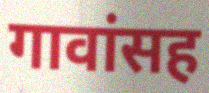
गावांसह